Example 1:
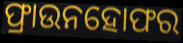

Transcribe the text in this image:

ଫ୍ରାଉନହୋଫର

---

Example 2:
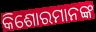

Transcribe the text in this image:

କିଶୋରମାନଙ୍କ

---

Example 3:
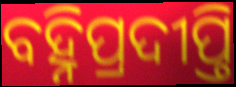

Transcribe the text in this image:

ବହ୍ନିପ୍ରଦୀପ୍ତି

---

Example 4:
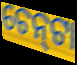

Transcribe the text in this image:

ଚେନ୍‌ଟା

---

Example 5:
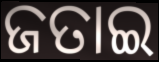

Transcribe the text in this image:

ଜତାଇ